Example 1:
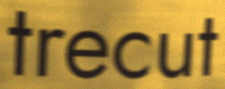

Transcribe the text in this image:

trecut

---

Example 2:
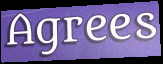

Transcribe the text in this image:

Agrees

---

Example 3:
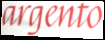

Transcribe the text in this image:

argento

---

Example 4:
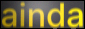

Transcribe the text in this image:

ainda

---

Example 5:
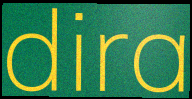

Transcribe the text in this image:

dira